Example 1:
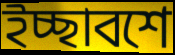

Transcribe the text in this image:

ইচ্ছাবশে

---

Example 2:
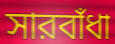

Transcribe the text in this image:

সারবাঁধা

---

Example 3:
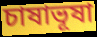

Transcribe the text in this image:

চাষাভূষা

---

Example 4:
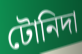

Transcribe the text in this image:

টোনিদা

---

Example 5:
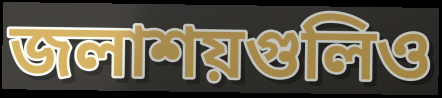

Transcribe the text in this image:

জলাশয়গুলিও